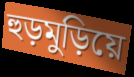
হুড়মুড়িয়ে